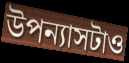
উপন্যাসটাও